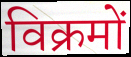
विक्रमों